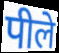
पीले